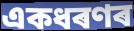
একধৰণৰ